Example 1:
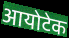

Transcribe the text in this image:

आयोटेक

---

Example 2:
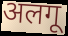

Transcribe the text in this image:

अलगू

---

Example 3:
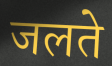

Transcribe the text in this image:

जलते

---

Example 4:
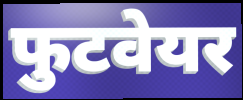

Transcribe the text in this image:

फुटवेयर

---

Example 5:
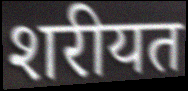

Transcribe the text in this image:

शरीयत